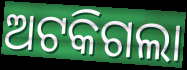
ଅଟକିଗଲା